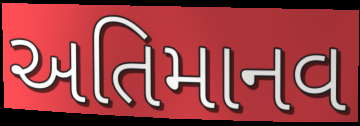
અતિમાનવ